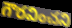
గౌరవించని